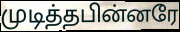
முடித்தபின்னரே